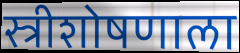
स्त्रीशोषणाला